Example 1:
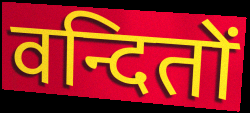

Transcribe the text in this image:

वन्दितों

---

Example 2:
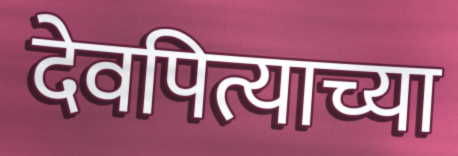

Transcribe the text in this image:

देवपित्याच्या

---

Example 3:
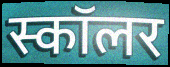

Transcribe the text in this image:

स्कॉलर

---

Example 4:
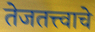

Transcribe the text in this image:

तेजतत्त्वाचे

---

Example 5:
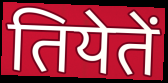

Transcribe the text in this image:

तियेतें